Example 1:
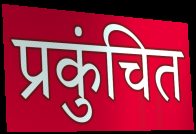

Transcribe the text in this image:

प्रकुंचित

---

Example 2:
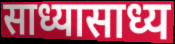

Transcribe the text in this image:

साध्यासाध्य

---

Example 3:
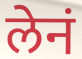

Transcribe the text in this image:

लेनं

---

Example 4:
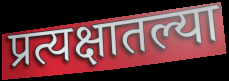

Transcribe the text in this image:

प्रत्यक्षातल्या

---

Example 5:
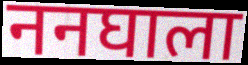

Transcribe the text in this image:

ननघाला